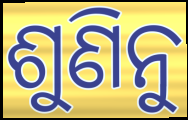
ଶୁଣିନୁ